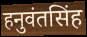
हनुवंतसिंह